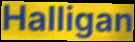
Halligan